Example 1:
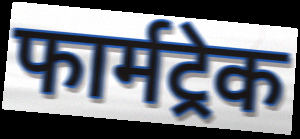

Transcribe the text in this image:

फार्मट्रेक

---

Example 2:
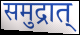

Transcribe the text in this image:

समुद्रात्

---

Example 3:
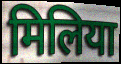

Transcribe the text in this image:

मिलिया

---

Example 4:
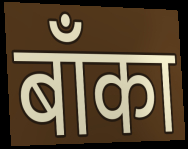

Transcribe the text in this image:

बाँका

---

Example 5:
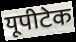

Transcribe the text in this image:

यूपीटेक